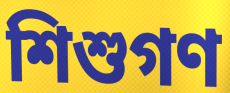
শিশুগণ